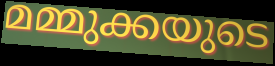
മമ്മുക്കയുടെ